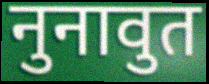
नुनावुत